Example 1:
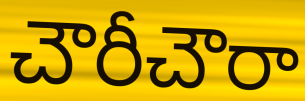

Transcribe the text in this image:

చౌరీచౌరా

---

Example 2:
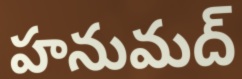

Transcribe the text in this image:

హనుమద్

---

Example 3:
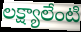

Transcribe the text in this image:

లక్ష్యాలేంటి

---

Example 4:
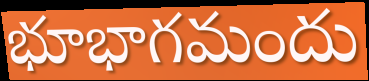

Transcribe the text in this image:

భూభాగమందు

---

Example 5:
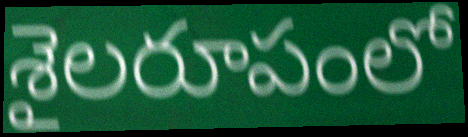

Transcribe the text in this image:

శైలరూపంలో